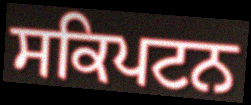
ਸਕਿਪਟਨ